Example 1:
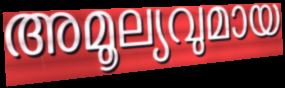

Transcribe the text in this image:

അമൂല്യവുമായ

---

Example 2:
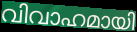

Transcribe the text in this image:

വിവാഹമായി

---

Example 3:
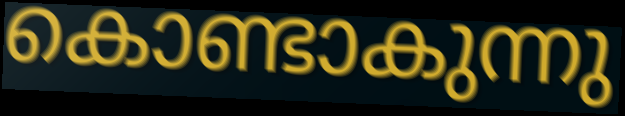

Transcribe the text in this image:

കൊണ്ടാകുന്നു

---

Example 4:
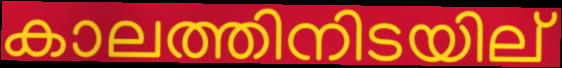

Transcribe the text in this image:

കാലത്തിനിടയില്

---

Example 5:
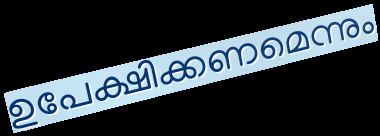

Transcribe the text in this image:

ഉപേക്ഷിക്കണമെന്നും